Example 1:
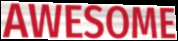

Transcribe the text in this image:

AWESOME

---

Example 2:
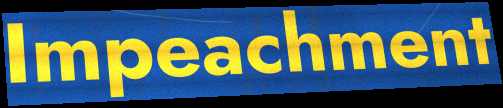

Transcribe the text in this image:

Impeachment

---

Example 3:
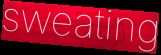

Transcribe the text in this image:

sweating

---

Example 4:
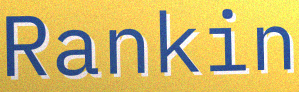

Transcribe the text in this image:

Rankin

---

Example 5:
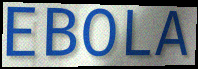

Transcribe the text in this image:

EBOLA